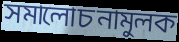
সমালোচনামুলক